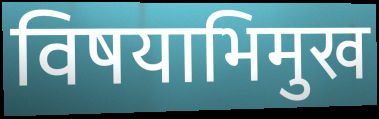
विषयाभिमुख